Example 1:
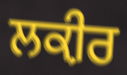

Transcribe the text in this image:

ਲਕ਼ੀਰ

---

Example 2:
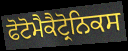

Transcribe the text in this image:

ਫੋਟੋਮੈਕੈਟ੍ਰੋਨਿਕਸ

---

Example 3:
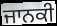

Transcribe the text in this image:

ਜਾਨਕੀ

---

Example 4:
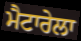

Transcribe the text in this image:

ਮੈਟਾਰੇਲਾ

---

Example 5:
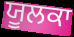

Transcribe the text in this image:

ਯੂਲਕਾ